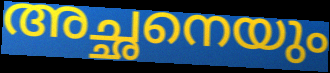
അച്ഛനെയും